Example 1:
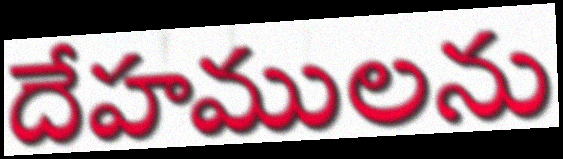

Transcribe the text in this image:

దేహములను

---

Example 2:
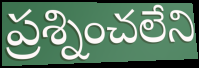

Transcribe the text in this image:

ప్రశ్నించలేని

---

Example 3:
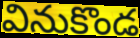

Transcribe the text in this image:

వినుకొండ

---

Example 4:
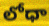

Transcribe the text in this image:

లోధా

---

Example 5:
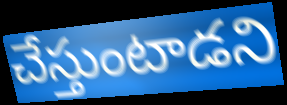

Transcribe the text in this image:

చేస్తుంటాడని